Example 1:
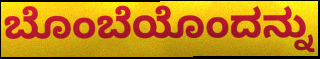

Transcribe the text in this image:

ಬೊಂಬೆಯೊಂದನ್ನು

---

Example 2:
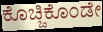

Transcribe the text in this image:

ಕೊಚ್ಚಿಕೊಂಡೇ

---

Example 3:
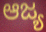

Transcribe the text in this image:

ಆಜ್ಯ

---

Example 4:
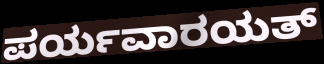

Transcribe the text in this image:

ಪರ್ಯವಾರಯತ್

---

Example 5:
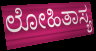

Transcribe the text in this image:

ಲೋಹಿತಾಸ್ಯ